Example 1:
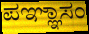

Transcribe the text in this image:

ಪಞ್ಞಾಸಂ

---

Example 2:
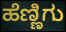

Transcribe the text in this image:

ಹೆಣ್ಣಿಗು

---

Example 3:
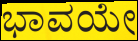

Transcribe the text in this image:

ಭಾವಯೇ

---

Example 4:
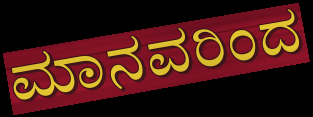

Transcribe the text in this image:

ಮಾನವರಿಂದ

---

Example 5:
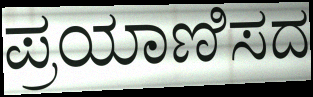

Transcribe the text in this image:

ಪ್ರಯಾಣಿಸದ